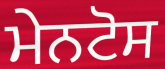
ਮੇਨਟੋਸ